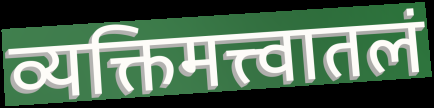
व्यक्तिमत्त्वातलं